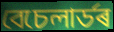
বেচেলাৰ্ডৰ